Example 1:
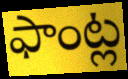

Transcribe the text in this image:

ఫాంట్ల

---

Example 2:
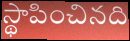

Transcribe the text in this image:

స్థాపించినది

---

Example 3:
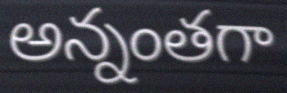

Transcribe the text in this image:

అన్నంతగా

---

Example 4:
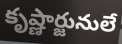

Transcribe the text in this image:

కృష్ణార్జునులే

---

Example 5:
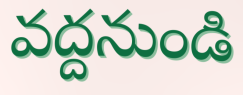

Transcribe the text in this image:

వద్దనుండి